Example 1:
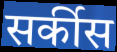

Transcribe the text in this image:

सर्कीस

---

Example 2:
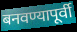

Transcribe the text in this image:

बनवण्यापूर्वी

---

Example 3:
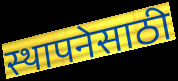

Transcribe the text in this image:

स्थापनेसाठी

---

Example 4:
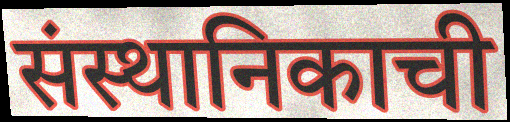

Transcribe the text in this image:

संस्थानिकाची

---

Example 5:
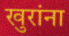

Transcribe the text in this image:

खुरांना